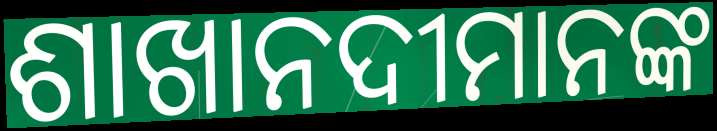
ଶାଖାନଦୀମାନଙ୍କ